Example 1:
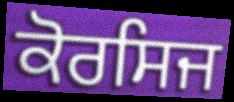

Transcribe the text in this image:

ਕੋਰਸਿਜ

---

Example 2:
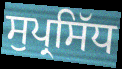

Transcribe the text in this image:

ਸੁਪ੍ਰਸਿੱਧ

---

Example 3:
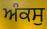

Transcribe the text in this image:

ਅੰਕਸੁ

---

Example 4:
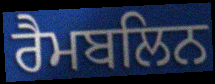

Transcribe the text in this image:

ਰੈਮਬਲਿਨ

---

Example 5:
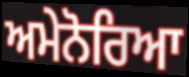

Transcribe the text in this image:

ਅਮੇਨੋਰਿਆ